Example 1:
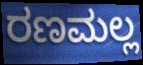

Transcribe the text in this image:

ರಣಮಲ್ಲ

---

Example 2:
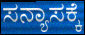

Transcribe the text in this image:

ಸನ್ಯಾಸಕ್ಕೆ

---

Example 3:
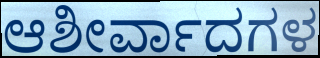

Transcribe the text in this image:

ಆಶೀರ್ವಾದಗಳ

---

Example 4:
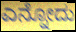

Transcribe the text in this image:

ಎನ್ನೋದು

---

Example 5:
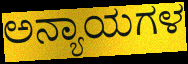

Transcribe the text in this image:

ಅನ್ಯಾಯಗಳ